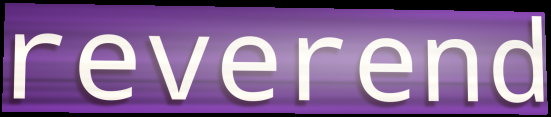
reverend